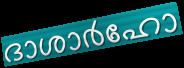
ദാശാർഹോ